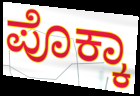
ಪೊಕ್ಕಾ